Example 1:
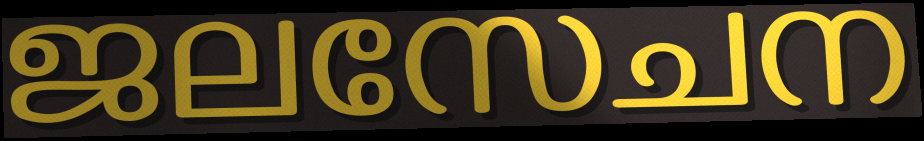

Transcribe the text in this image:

ജലസേചന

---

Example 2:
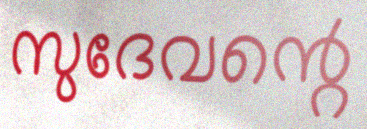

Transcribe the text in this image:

സുദേവന്റെ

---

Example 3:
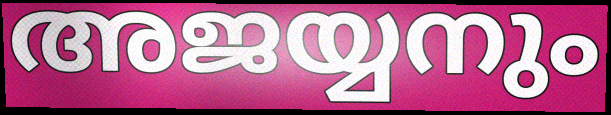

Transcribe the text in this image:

അജയ്യനും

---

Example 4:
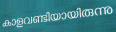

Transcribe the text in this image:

കാളവണ്ടിയായിരുന്നു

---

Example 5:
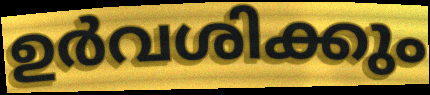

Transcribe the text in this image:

ഉർവശിക്കും